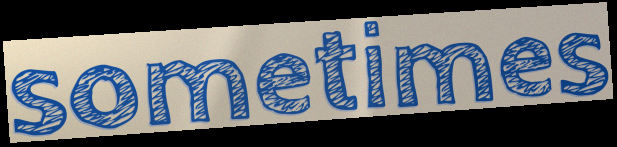
sometimes